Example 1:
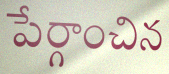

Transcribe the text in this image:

పేర్గాంచిన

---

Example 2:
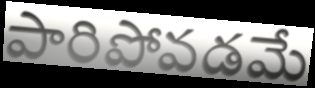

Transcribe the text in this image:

పారిపోవడమే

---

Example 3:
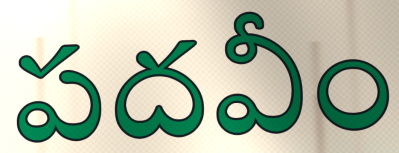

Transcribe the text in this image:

పదవీం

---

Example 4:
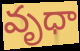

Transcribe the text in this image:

వృధా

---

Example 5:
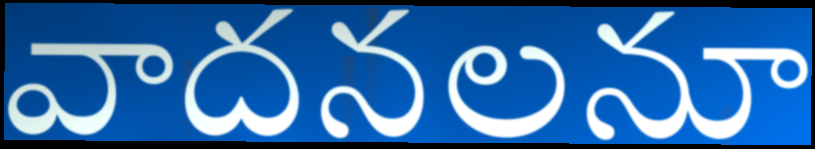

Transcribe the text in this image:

వాదనలనూ